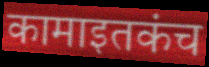
कामाइतकंच